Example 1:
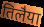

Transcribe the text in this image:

तिलैया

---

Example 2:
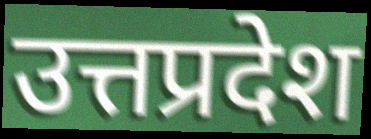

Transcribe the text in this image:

उत्तप्रदेश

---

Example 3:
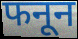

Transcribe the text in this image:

फनून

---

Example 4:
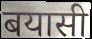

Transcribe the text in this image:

बयासी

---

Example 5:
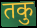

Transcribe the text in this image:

तकु